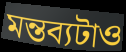
মন্তব্যটাও